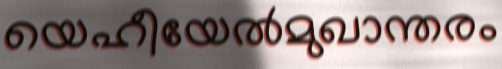
യെഹീയേൽമുഖാന്തരം